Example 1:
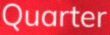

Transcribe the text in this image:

Quarter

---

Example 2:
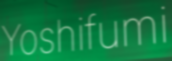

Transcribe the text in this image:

Yoshifumi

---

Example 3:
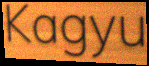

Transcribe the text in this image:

Kagyu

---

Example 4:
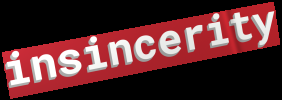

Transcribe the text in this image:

insincerity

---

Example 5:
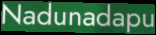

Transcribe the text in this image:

Nadunadapu